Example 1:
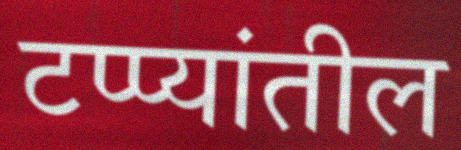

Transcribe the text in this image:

टप्प्यांतील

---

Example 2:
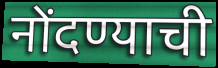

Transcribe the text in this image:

नोंदण्याची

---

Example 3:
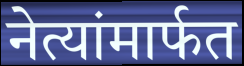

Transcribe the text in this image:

नेत्यांमार्फत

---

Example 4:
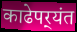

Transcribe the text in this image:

काढेपर्यंत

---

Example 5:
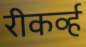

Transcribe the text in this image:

रीकर्व्ह